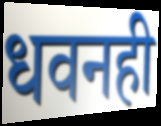
धवनही